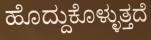
ಹೊದ್ದುಕೊಳ್ಳುತ್ತದೆ